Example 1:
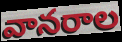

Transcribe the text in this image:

వానరాల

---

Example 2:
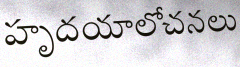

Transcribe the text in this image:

హృదయాలోచనలు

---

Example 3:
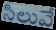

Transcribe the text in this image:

సిలువే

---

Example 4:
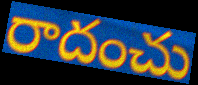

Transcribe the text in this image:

రాదంచు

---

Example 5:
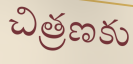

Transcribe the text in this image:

చిత్రణకు